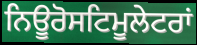
ਨਿਊਰੋਸਟਿਮੂਲੇਟਰਾਂ